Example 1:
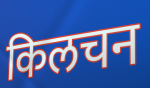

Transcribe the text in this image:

किलचन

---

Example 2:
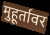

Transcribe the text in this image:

मुहूर्तावर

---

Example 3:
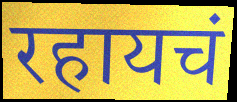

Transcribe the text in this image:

रहायचं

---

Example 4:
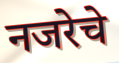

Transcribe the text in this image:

नजरेचे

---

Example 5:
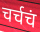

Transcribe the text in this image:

चर्चचं